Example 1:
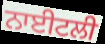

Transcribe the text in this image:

ਨਾਈਟਲੀ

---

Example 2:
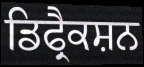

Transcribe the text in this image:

ਡਿਫ੍ਰੈਕਸ਼ਨ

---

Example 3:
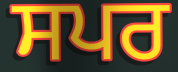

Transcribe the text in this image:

ਸਪਰ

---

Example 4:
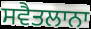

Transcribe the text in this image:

ਸਵੈਤਲਾਨਾ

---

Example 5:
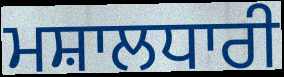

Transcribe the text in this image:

ਮਸ਼ਾਲਧਾਰੀ